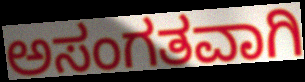
ಅಸಂಗತವಾಗಿ